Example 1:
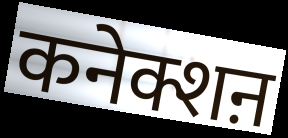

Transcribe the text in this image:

कनेक्शऩ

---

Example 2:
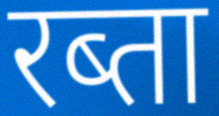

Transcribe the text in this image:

रब्ता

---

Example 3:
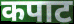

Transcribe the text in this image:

कपाट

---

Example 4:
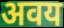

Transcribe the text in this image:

अवय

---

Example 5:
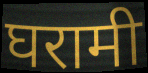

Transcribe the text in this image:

घरामी